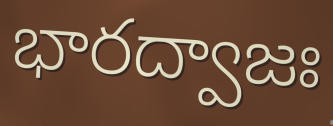
భారద్వాజః